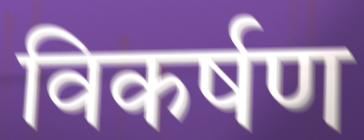
विकर्षण